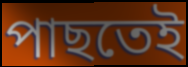
পাছতেই